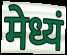
मेध्यं